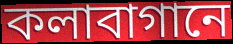
কলাবাগানে